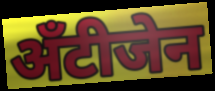
अँटीजेन